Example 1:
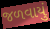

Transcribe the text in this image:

જળવાયું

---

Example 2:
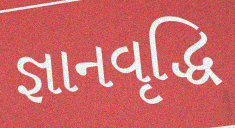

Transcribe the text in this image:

જ્ઞાનવૃદ્ધિ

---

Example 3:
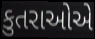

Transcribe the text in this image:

કુતરાઓએ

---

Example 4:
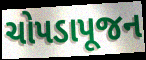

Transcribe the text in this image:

ચોપડાપૂજન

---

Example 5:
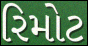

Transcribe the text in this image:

રિમોટ